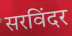
सरविंदर